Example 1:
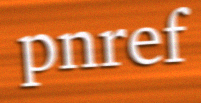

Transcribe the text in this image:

pnref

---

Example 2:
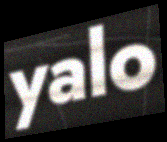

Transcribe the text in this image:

yalo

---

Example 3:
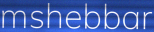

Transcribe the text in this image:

mshebbar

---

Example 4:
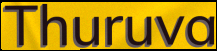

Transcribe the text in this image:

Thuruva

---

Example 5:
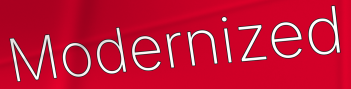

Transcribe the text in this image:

Modernized